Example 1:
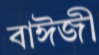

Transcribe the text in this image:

বাঈজী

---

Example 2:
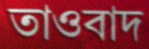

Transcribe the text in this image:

তাওবাদ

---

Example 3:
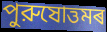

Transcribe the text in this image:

পুৰুষোত্তমৰ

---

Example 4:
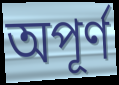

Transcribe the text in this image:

অপূৰ্ণ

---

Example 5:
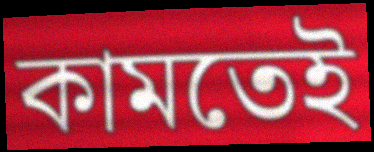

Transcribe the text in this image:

কামতেই